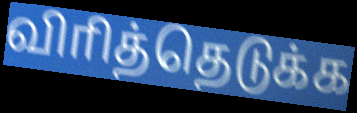
விரித்தெடுக்க